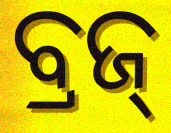
ବ୍ରଜ୍